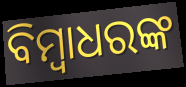
ବିମ୍ବାଧରଙ୍କ